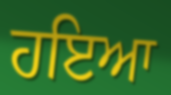
ਹਇਆ